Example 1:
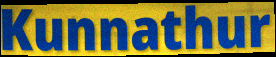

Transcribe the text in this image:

Kunnathur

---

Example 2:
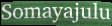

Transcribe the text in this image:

Somayajulu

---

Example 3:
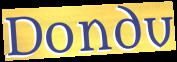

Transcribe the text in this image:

Dondu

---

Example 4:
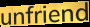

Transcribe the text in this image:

unfriend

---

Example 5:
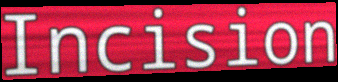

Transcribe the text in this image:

Incision